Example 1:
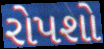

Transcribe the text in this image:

રોપશો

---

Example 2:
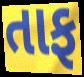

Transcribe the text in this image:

તાફ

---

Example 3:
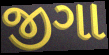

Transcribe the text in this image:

જીગા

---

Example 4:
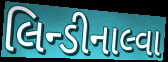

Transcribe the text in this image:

લિન્ડીનાલ્વા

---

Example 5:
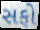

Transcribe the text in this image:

સફો